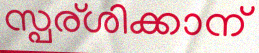
സ്പര്ശിക്കാന്